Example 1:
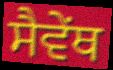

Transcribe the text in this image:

ਸੈਵੇਂਥ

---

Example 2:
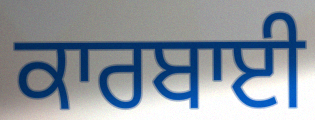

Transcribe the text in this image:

ਕਾਰਬਾਈ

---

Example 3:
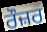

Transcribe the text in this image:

ਰੌਜ਼ਰ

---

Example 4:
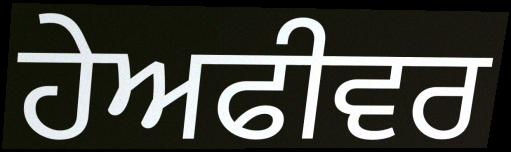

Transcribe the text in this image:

ਹੇਅਫੀਵਰ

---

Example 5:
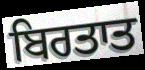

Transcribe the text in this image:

ਬਿਰਤਾਤ